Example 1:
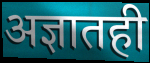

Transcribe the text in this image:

अज्ञातही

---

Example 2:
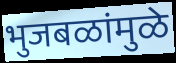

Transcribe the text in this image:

भुजबळांमुळे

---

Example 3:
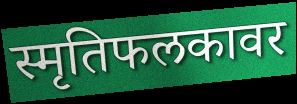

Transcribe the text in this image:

स्मृतिफलकावर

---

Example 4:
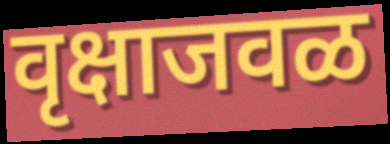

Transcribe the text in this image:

वृक्षाजवळ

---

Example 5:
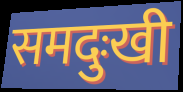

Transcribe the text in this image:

समदुःखी